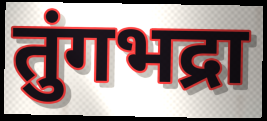
तुंगभद्रा